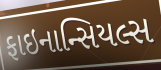
ફાઇનાન્સિયલ્સ